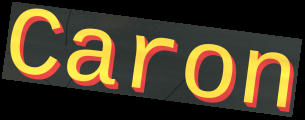
Caron